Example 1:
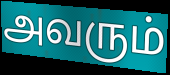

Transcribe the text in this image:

அவரும்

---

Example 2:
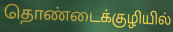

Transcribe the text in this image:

தொண்டைக்குழியில்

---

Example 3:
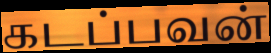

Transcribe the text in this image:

கடப்பவன்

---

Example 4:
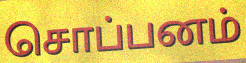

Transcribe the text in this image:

சொப்பனம்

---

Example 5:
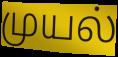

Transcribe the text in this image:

முயல்